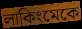
লাকিংমেকে